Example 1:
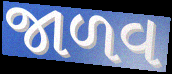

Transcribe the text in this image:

જાળવ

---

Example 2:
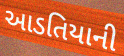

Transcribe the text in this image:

આડતિયાની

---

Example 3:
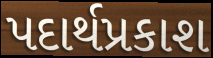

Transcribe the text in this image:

પદાર્થપ્રકાશ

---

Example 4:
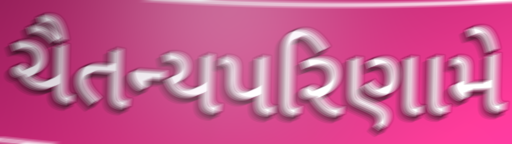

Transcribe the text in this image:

ચૈતન્યપરિણામે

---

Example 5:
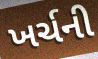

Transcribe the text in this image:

ખર્ચની